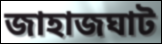
জাহাজঘাট